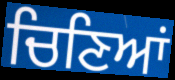
ਚਿਣਿਆਂ